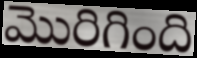
మొరిగింది